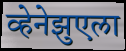
व्हेनेझुएला